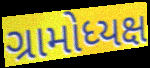
ગ્રામોધ્યક્ષ